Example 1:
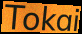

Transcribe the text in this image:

Tokai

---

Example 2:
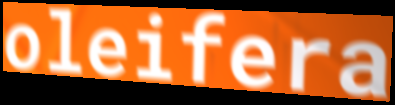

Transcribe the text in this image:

oleifera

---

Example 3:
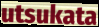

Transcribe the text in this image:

utsukata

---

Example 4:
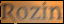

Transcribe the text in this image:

Rozin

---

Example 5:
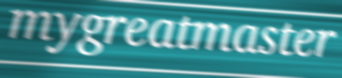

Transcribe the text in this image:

mygreatmaster